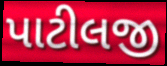
પાટીલજી